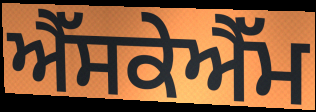
ਐੱਸਕੇਐੱਮ